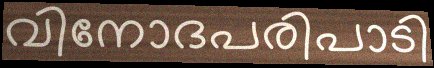
വിനോദപരിപാടി